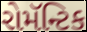
રોમૅન્ટિક